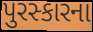
પુરસ્કારના